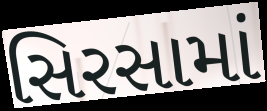
સિરસામાં